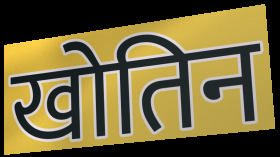
खोतिन